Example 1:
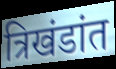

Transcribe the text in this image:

त्रिखंडांत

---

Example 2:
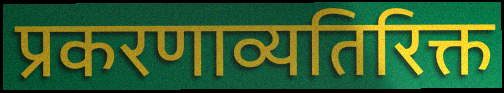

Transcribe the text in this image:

प्रकरणाव्यतिरिक्त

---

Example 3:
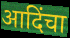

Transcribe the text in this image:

आदिंचा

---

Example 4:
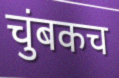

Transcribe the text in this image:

चुंबकच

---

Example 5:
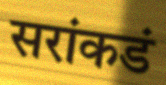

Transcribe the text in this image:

सरांकडं